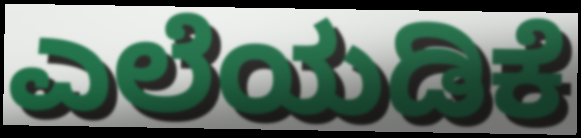
ಎಲೆಯಡಿಕೆ